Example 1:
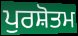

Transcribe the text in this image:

ਪੁਰਸ਼ੋਤਮ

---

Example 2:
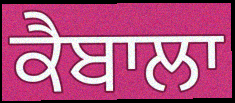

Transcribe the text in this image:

ਕੈਬਾਲਾ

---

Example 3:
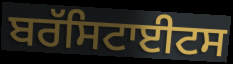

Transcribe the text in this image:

ਬਰੱਸਿਟਾਈਟਸ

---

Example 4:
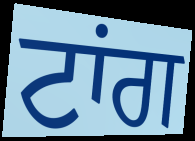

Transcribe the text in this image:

ਟਾਂਗ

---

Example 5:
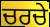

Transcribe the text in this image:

ਚਰਚੇ